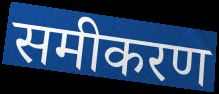
समीकरण